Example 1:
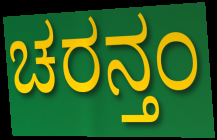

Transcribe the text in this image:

ಚರನ್ತಂ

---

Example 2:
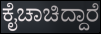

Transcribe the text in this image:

ಕೈಚಾಚಿದ್ದಾರೆ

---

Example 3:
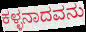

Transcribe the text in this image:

ಕಳ್ಳನಾದವನು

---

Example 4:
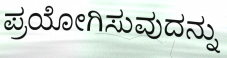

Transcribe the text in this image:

ಪ್ರಯೋಗಿಸುವುದನ್ನು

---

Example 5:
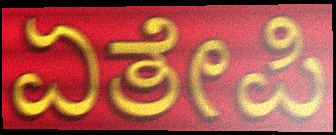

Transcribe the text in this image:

ಏತೇಪಿ